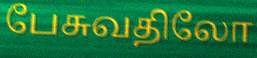
பேசுவதிலோ